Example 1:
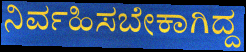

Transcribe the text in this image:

ನಿರ್ವಹಿಸಬೇಕಾಗಿದ್ದ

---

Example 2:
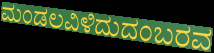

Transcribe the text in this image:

ಮಂಡಲವಿಳಿದುದಂಬರವ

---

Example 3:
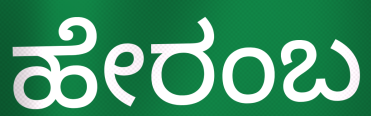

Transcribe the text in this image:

ಹೇರಂಬ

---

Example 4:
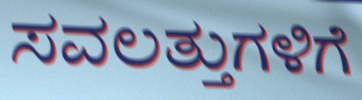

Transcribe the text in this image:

ಸವಲತ್ತುಗಳಿಗೆ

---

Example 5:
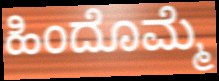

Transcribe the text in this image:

ಹಿಂದೊಮ್ಮೆ